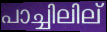
പാച്ചിലില്